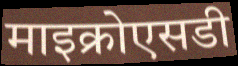
माइक्रोएसडी